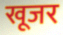
खूजर